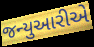
જન્યુઆરીએ